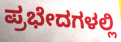
ಪ್ರಭೇದಗಳಲ್ಲಿ